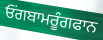
ਓਂਗਬਾਮਰੂੰਗਫਾਨ